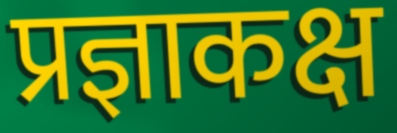
प्रज्ञाकक्ष